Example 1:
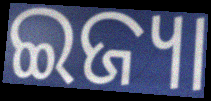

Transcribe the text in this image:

ଇଜ୍ୟା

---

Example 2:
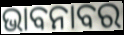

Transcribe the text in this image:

ଭାବନାବର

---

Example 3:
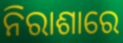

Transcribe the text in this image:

ନିରାଶାରେ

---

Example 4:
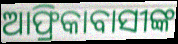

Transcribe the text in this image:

ଆଫ୍ରିକାବାସୀଙ୍କ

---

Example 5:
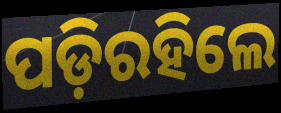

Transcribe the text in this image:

ପଡ଼ିରହିଲେ